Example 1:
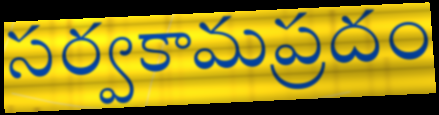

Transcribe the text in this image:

సర్వకామప్రదం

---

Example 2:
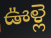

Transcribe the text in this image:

ఊళ్లె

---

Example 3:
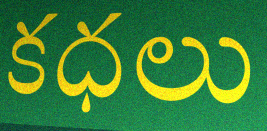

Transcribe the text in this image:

కధలు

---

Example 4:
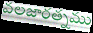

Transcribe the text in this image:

వలజారత్నము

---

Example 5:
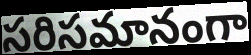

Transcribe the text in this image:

సరిసమానంగా